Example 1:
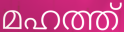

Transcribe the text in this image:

മഹത്ത്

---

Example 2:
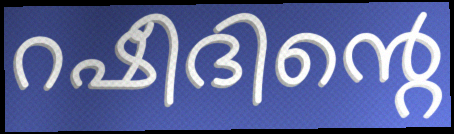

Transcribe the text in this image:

റഷീദിന്റെ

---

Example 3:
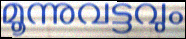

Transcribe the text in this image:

മൂന്നുവട്ടവും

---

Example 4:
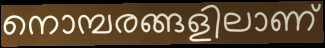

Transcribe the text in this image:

നൊമ്പരങ്ങളിലാണ്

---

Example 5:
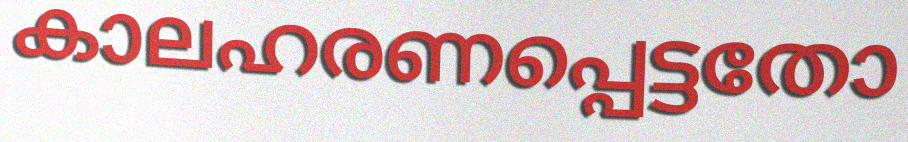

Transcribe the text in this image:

കാലഹരണപ്പെട്ടതോ